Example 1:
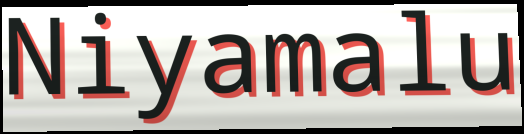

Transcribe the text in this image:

Niyamalu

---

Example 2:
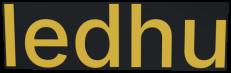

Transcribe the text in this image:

ledhu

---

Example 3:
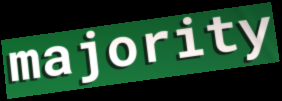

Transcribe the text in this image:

majority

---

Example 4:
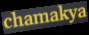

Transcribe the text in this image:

chamakya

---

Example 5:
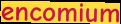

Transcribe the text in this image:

encomium